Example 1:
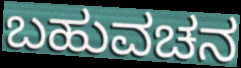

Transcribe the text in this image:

ಬಹುವಚನ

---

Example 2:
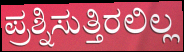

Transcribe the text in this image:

ಪ್ರಶ್ನಿಸುತ್ತಿರಲಿಲ್ಲ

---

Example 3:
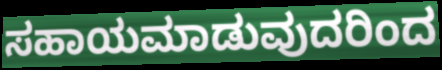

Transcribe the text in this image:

ಸಹಾಯಮಾಡುವುದರಿಂದ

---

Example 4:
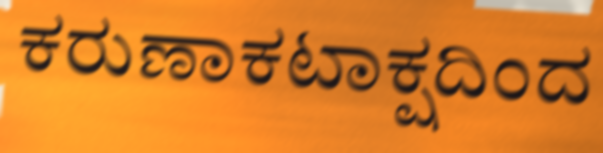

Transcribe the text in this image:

ಕರುಣಾಕಟಾಕ್ಷದಿಂದ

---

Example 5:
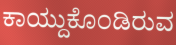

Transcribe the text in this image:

ಕಾಯ್ದುಕೊಂಡಿರುವ